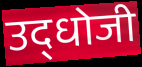
उद्धोजी